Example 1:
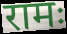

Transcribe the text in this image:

रामः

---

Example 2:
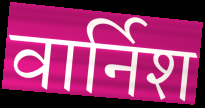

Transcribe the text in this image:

वार्निश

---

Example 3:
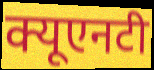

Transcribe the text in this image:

क्यूएनटी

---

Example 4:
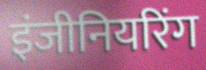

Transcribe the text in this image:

इंजीनियरिंग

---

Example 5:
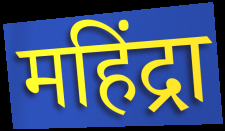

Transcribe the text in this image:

महिंद्रा